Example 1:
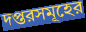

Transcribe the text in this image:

দপ্তরসমূহের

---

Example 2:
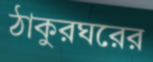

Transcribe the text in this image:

ঠাকুরঘরের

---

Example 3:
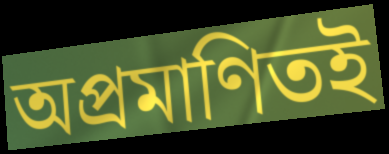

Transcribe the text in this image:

অপ্রমাণিতই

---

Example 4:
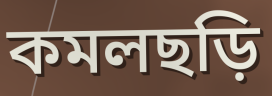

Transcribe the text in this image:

কমলছড়ি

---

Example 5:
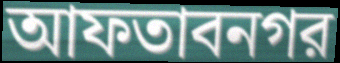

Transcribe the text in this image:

আফতাবনগর